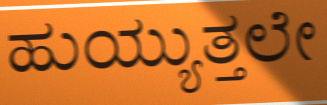
ಹುಯ್ಯುತ್ತಲೇ